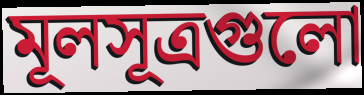
মূলসূত্রগুলো